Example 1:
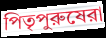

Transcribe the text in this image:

পিতৃপুরুষেরা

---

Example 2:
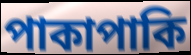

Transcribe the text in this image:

পাকাপাকি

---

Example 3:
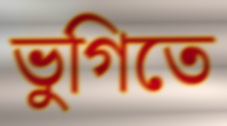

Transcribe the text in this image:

ভুগিতে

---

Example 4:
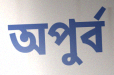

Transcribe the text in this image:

অপুর্ব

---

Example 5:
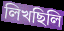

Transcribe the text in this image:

লিখছিলি